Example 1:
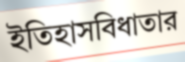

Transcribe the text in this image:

ইতিহাসবিধাতার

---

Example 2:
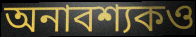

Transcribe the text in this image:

অনাবশ্যকও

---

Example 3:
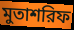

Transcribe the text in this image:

মুতাশরিফ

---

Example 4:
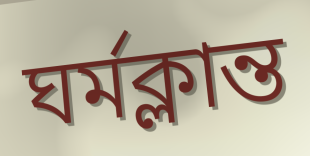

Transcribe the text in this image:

ঘর্মক্লান্ত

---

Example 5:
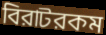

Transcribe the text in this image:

বিরাটরকম